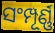
ସଂମ୍ପୂର୍ଣ୍ଣ